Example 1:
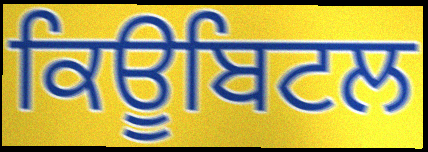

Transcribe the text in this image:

ਕਿਊਬਿਟਲ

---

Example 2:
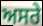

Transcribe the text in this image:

ਅਸਰੇ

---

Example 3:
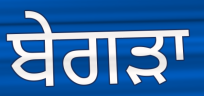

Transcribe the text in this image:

ਬੇਗੜਾ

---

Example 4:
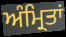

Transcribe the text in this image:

ਅੰਮ੍ਰਿਤਾਂ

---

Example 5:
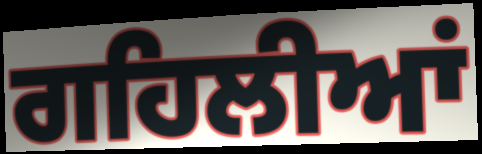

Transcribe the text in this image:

ਗਹਿਲੀਆਂ